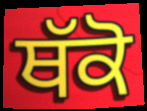
ਥੱਕੋ